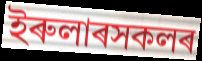
ইৰুলাৰসকলৰ